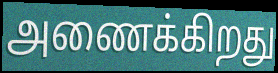
அணைக்கிறது